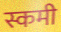
स्कमी